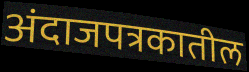
अंदाजपत्रकातील